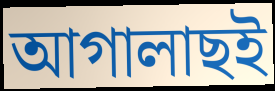
আগালাছই